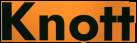
Knott